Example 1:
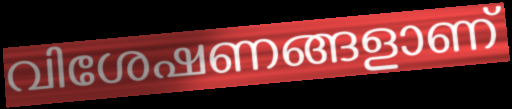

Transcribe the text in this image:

വിശേഷണങ്ങളാണ്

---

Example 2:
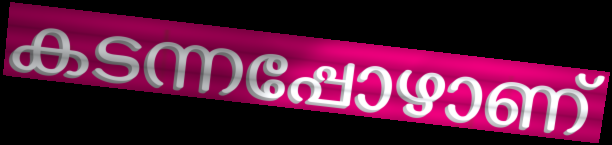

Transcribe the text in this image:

കടന്നപ്പോഴാണ്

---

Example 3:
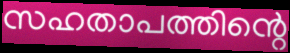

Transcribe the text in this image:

സഹതാപത്തിന്റെ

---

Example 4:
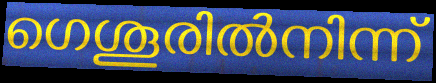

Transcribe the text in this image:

ഗെശൂരിൽനിന്ന്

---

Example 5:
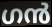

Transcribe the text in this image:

ഗൻ